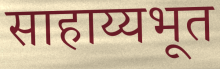
साहाय्यभूत